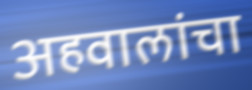
अहवालांचा